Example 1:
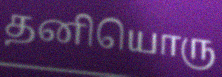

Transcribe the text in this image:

தனியொரு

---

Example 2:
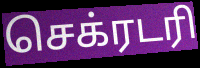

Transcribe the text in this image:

செக்ரடரி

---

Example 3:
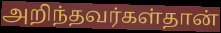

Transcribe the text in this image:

அறிந்தவர்கள்தான்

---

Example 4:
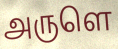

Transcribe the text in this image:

அருளெ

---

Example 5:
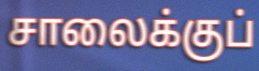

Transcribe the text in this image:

சாலைக்குப்